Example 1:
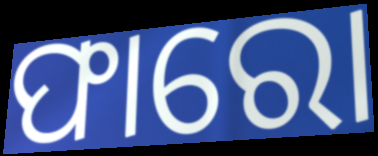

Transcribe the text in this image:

ଫାରୋ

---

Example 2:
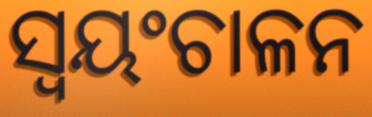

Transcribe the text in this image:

ସ୍ବୟଂଚାଳନ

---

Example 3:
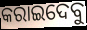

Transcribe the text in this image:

କରାଇଦେବୁ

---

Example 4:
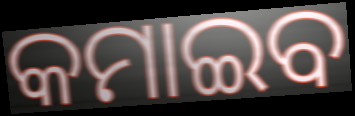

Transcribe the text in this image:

କମାଇବ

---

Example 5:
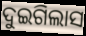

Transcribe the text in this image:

ଦୁଇଗିଲାସ